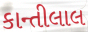
કાન્તીલાલ